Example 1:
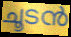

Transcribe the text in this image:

ചൂടൻ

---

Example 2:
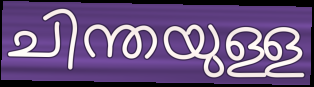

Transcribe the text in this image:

ചിന്തയുള്ള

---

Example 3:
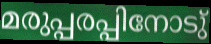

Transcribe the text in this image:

മരുപ്പരപ്പിനോടു്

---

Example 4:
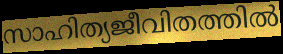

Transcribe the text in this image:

സാഹിത്യജീവിതത്തിൽ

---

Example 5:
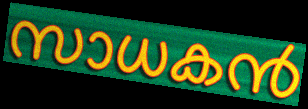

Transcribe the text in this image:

സാധകൻ